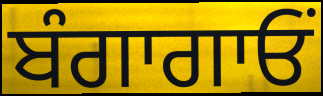
ਬੰਗਾਗਾਓਂ